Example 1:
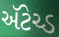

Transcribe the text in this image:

ઍટેચ્ડ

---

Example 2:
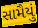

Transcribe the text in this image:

સામૈયું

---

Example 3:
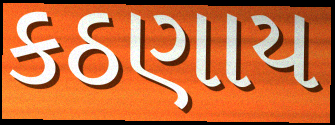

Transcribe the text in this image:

કઠણાય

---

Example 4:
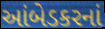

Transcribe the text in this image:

આંબેડકરનાં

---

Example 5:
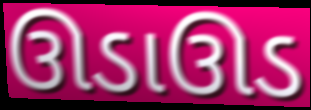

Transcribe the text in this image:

ઊડાઊડ